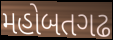
મહોબતગઢ